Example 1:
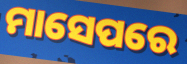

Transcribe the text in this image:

ମାସେପରେ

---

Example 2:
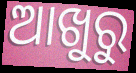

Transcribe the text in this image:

ଆଖୁରୁ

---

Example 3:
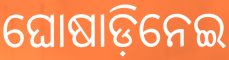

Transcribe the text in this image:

ଘୋଷାଡ଼ିନେଇ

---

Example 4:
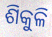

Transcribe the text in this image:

ଶିକୁଳି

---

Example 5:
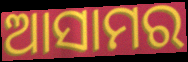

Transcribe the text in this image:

ଆସାମର